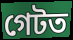
গেটত